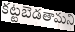
కట్టబెడతామని